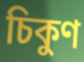
চিকুণ